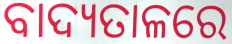
ବାଦ୍ୟତାଳରେ